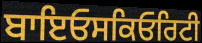
ਬਾਇਓਸਕਿਓਰਿਟੀ